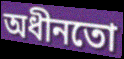
অধীনতো